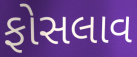
ફોસલાવ